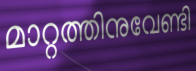
മാറ്റത്തിനുവേണ്ടി